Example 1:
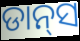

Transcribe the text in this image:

ଡାନ୍‍ସ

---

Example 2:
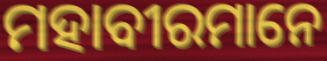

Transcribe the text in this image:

ମହାବୀରମାନେ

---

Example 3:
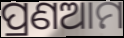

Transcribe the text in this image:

ପ୍ରଣଆମ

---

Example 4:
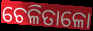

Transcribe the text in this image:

ଚେଳିତାଳୋ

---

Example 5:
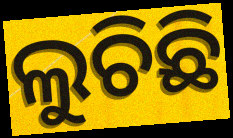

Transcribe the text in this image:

ଲୁଚିଛି